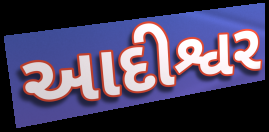
આદીશ્વર